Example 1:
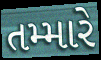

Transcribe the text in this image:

તમ્મારે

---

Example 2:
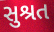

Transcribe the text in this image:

સુશ્રત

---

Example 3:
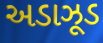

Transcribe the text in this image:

અડાઝૂડ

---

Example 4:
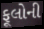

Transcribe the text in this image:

ફૂલોની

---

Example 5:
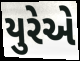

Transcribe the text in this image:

યુરેએ